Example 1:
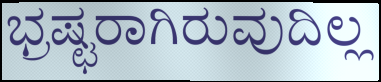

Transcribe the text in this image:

ಭ್ರಷ್ಟರಾಗಿರುವುದಿಲ್ಲ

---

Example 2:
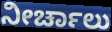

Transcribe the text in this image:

ನೀರ್ಚಾಲು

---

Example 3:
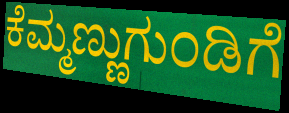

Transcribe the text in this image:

ಕೆಮ್ಮಣ್ಣುಗುಂಡಿಗೆ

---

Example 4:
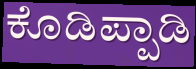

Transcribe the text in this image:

ಕೊಡಿಪ್ಪಾಡಿ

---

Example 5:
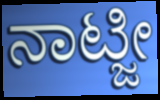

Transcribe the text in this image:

ನಾಟ್ಜೀ